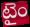
టైం